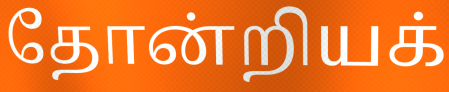
தோன்றியக்